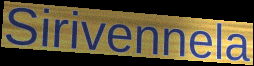
Sirivennela